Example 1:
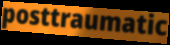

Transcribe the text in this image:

posttraumatic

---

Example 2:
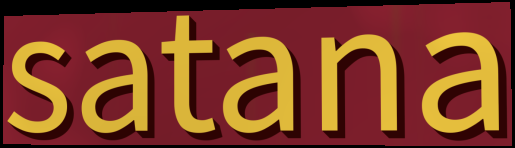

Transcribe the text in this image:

satana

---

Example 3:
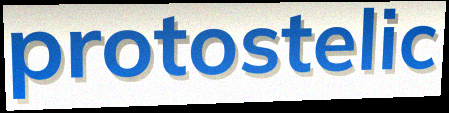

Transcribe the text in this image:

protostelic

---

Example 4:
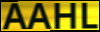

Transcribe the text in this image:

AAHL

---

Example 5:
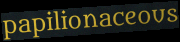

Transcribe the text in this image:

papilionaceous